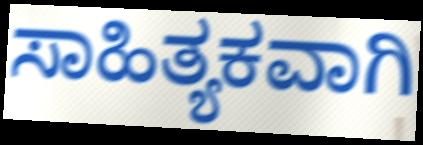
ಸಾಹಿತ್ಯಕವಾಗಿ